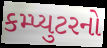
કમ્પ્યુટરનો